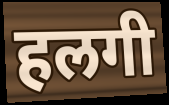
हलगी